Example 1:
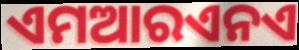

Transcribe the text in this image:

ଏମଆରଏନଏ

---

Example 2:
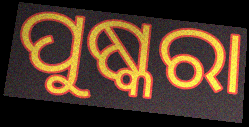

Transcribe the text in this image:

ପୁଷ୍କରା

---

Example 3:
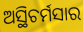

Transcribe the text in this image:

ଅସ୍ଥିଚର୍ମସାର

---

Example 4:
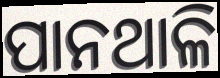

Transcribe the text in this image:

ପାନଥାଳି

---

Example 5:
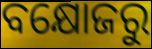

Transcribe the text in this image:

ବକ୍ଷୋଜରୁ